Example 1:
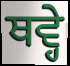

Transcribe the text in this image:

ਥਵ੍ਹੇ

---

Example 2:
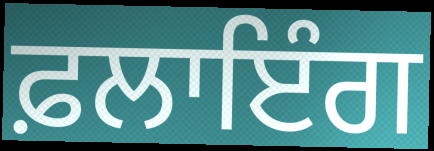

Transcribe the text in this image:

ਫ਼ਲਾਇੰਗ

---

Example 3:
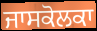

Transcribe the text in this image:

ਜਾਸਕੋਲਕਾ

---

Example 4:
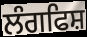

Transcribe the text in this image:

ਲੰਗਫਿਸ਼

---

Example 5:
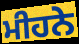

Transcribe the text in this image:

ਮੀਹਨੇ